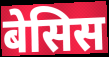
बेसिस